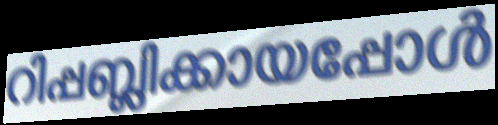
റിപ്പബ്ലിക്കായപ്പോൾ